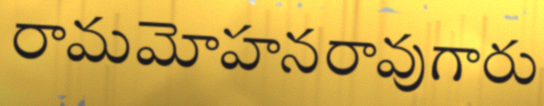
రామమోహనరావుగారు